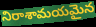
నిరాశామయమైన